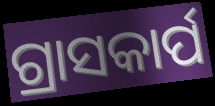
ଗ୍ରାସକାର୍ପ